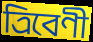
ত্ৰিবেণী